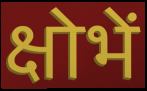
क्षोभें